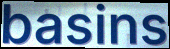
basins